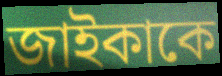
জাইকাকে